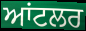
ਆਂਟਲਰ